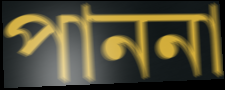
পাননা